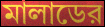
মালাডের